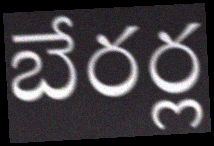
బేరర్ల